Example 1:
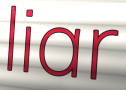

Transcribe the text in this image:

liar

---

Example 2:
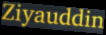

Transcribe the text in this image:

Ziyauddin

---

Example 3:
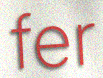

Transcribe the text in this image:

fer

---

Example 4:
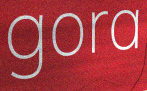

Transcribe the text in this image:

gora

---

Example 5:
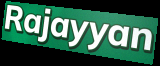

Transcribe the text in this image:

Rajayyan